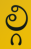
ల్గి